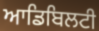
ਆਡਿਬਿਲਟੀ